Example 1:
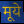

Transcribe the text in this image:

मूये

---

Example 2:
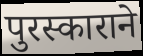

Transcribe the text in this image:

पुरस्काराने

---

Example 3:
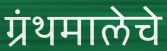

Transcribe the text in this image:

ग्रंथमालेचे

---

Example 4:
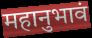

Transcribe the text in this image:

महानुभावं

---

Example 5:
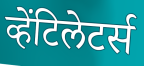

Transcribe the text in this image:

व्हेंटिलेटर्स